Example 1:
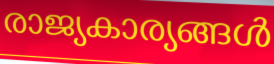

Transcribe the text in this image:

രാജ്യകാര്യങ്ങൾ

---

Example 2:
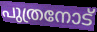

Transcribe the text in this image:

പുത്രനോട്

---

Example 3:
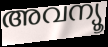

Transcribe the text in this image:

അവന്യൂ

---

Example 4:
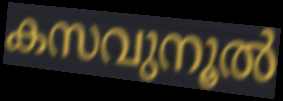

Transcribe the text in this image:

കസവുനൂൽ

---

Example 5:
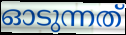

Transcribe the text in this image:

ഓടുന്നത്